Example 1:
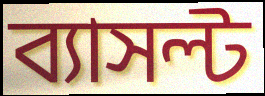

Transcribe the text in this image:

ব্যাসল্ট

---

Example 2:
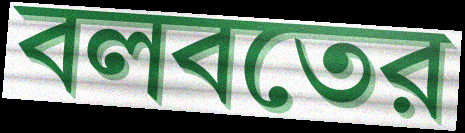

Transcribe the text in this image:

বলবতের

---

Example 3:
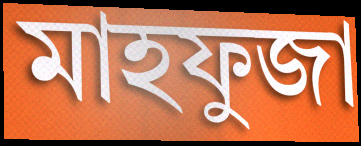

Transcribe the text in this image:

মাহফুজা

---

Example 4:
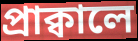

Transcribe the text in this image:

প্রাক্বালে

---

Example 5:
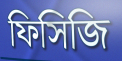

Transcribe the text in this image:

ফিসিজি